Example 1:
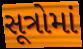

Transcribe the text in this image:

સૂત્રોમાં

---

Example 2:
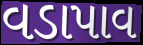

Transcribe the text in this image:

વડાપાવ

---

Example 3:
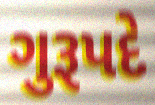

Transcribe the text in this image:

ગુરૂપદે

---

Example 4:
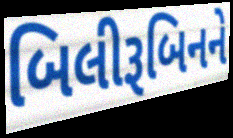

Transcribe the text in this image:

બિલીરૂબિનને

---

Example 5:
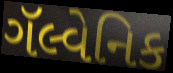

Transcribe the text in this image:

ગૅલ્વેનિક